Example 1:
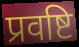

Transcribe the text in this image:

प्रवष्टि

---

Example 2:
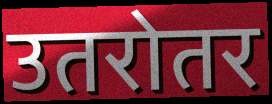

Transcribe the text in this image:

उतरोतर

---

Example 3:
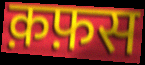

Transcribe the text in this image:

क़फ़स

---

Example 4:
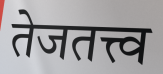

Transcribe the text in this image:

तेजतत्त्व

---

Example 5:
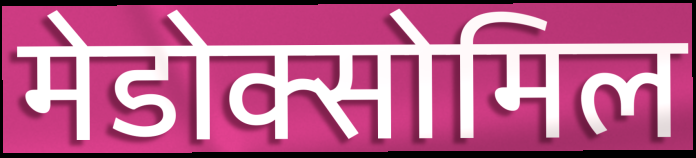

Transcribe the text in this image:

मेडोक्सोमिल